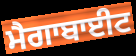
ਮੈਗਾਬਾਈਟ